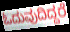
ಓದುವುದಿದ್ದರೆ